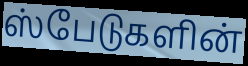
ஸ்பேடுகளின்